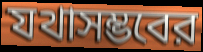
যথাসম্ভবের